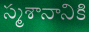
స్మశానానికి